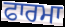
ਫਾਰਮਾ